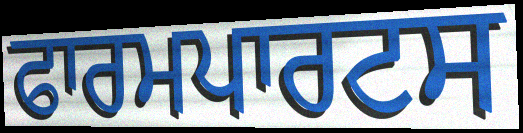
ਫਾਰਮਪਾਰਟਸ